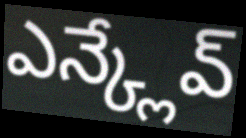
ఎన్క్లేవ్